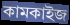
কামকাইজ